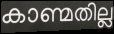
കാണ്മതില്ല